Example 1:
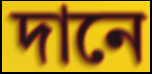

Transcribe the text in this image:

দানে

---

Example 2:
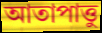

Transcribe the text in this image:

আতাপাত্তু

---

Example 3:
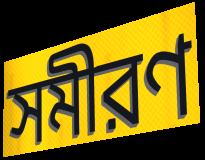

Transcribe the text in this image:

সমীরণ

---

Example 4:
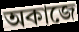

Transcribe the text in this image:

অকাজে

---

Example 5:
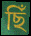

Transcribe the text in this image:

ছিঁ